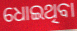
ଧୋଇଥିବା